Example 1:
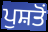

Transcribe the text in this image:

ਪੁਸ਼ਤੋਂ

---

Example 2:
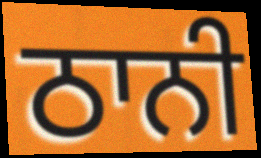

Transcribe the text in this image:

ਠਾਨੀ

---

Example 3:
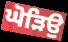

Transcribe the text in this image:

ਘੋੜਿਉ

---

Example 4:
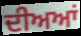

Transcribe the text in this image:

ਦੀਅਆਂ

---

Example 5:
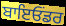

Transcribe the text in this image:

ਬਾਇਓਂਡਰ